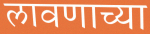
लावणाच्या